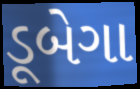
ડૂબેગા